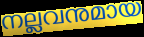
നല്ലവനുമായ